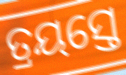
ତ୍ରୟସ୍ତେ